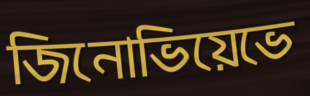
জিনোভিয়েভে